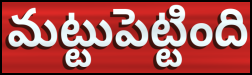
మట్టుపెట్టింది